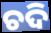
ଚଦି